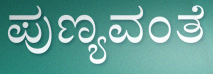
ಪುಣ್ಯವಂತೆ